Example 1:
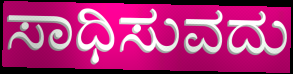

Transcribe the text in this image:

ಸಾಧಿಸುವದು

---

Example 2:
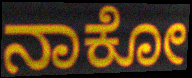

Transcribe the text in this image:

ನಾಕೋ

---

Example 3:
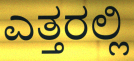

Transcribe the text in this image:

ಎತ್ತರಲ್ಲಿ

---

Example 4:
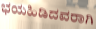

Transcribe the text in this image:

ಭಯಹಿಡಿದವರಾಗಿ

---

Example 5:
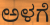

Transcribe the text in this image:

ಅಳಗೆ